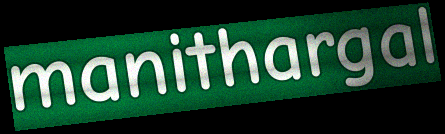
manithargal